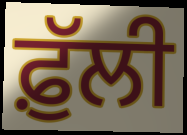
ਫ਼ੁੱਲੀ